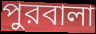
পুরবালা